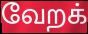
வேறக்